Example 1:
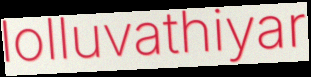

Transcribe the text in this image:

lolluvathiyar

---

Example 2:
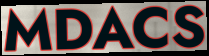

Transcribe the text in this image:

MDACS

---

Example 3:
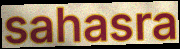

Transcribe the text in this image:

sahasra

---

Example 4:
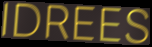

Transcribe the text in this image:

IDREES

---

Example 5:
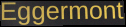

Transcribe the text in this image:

Eggermont